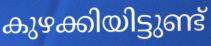
കുഴക്കിയിട്ടുണ്ട്